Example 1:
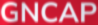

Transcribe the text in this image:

GNCAP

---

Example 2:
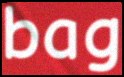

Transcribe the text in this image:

bag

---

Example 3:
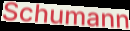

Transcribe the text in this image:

Schumann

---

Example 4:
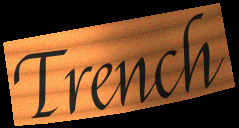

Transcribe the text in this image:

Trench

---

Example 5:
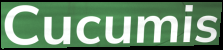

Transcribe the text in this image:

Cucumis